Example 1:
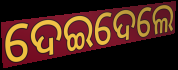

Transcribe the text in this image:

ଦେଇଦେଲେ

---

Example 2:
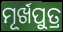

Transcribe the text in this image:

ମୂର୍ଖପୁତ୍ର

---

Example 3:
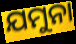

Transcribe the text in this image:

ଯମୁନା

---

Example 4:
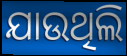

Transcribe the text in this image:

ଯାଉଥିଲି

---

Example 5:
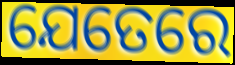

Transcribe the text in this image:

ଯେତେରେ